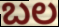
ಬಲ